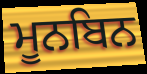
ਮੂਨਬਿਨ